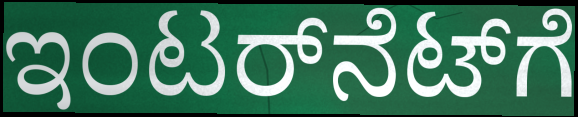
ಇಂಟರ್‌ನೆಟ್‌ಗೆ